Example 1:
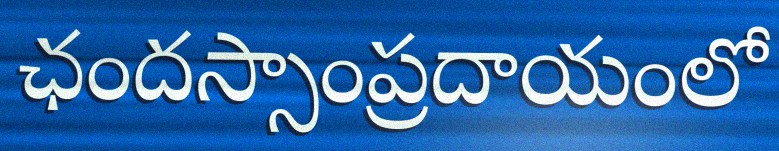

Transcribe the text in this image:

ఛందస్సాంప్రదాయంలో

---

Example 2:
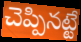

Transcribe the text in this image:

చెప్పినట్టే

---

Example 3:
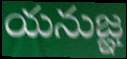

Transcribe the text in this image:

యనుజ్ఞ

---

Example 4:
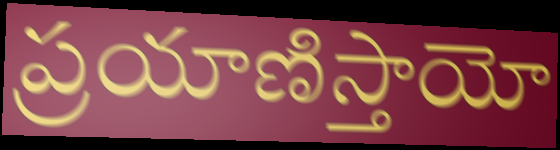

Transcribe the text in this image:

ప్రయాణిస్తాయో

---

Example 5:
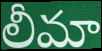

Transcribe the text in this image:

లీమా